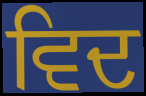
ਵਿਦ